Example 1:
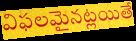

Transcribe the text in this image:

విఫలమైనట్లయితే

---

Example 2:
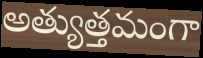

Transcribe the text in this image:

అత్యుత్తమంగా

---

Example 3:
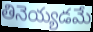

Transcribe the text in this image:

తినెయ్యడమే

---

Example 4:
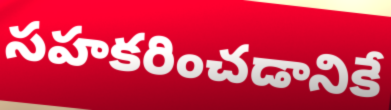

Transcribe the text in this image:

సహకరించడానికే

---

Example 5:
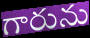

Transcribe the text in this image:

గారును